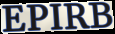
EPIRB